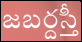
జబర్దస్తీ